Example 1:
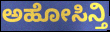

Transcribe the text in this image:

ಅಹೋಸಿನ್ತಿ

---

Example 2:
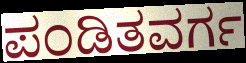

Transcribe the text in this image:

ಪಂಡಿತವರ್ಗ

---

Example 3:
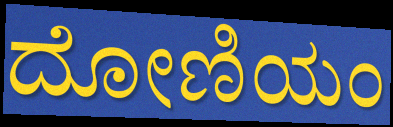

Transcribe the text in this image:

ದೋಣಿಯಂ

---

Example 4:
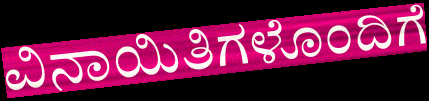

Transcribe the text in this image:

ವಿನಾಯಿತಿಗಳೊಂದಿಗೆ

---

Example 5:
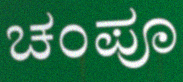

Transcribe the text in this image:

ಚಂಪೂ